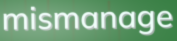
mismanage